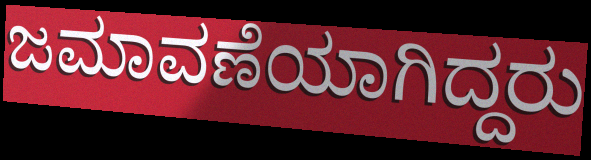
ಜಮಾವಣೆಯಾಗಿದ್ದರು